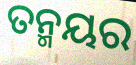
ତନ୍ମୟର